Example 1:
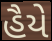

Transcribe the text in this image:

હૈયે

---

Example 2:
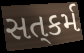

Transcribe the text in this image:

સત્‌કર્મ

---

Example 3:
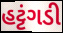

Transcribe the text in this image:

હટ્ટંગડી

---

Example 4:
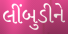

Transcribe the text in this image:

લીંબુડીને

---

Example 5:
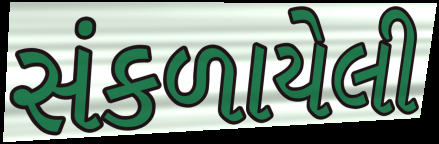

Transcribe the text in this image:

સંકળાયેલી